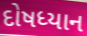
દોષધ્યાન